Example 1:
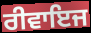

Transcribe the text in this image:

ਰੀਵਾਇਜ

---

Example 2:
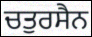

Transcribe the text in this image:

ਚਤੁਰਸੈਨ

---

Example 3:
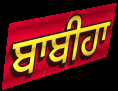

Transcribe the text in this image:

ਬਾਬੀਹਾ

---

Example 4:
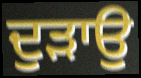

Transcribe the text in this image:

ਦੁੜਾਉ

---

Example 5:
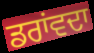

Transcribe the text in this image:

ਡਰਾਂਵਦਾ